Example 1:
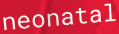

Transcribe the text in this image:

neonatal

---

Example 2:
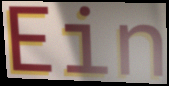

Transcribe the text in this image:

Ein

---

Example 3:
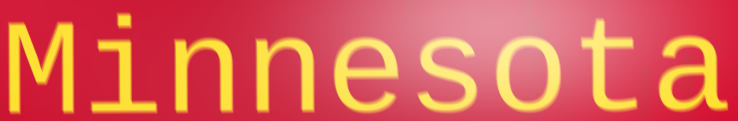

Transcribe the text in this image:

Minnesota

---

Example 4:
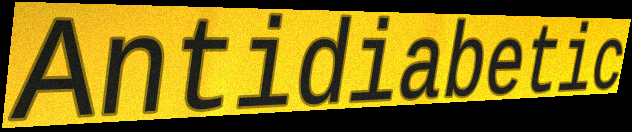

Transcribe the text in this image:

Antidiabetic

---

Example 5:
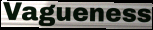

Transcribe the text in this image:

Vagueness